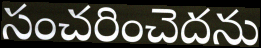
సంచరించెదను